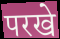
परखे